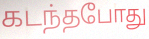
கடந்தபோது